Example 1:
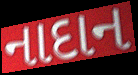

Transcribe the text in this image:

નાદાન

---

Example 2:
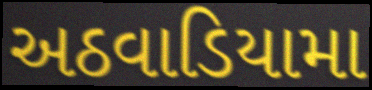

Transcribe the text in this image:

અઠવાડિયામા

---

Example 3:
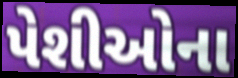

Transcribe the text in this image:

પેશીઓના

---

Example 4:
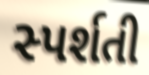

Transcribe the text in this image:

સ્પર્શતી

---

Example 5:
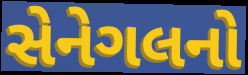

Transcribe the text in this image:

સેનેગલનો